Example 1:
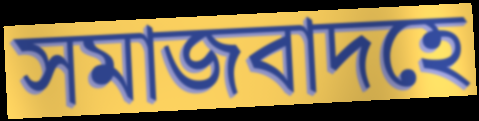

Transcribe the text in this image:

সমাজবাদহে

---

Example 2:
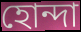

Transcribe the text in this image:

হোন্দা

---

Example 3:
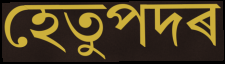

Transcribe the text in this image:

হেতুপদৰ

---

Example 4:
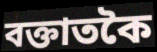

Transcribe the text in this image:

বক্তাতকৈ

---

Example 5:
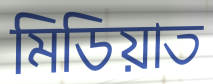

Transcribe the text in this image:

মিডিয়াত